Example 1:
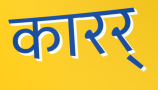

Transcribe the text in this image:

कारर्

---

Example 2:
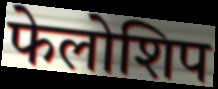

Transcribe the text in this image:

फेलोशिप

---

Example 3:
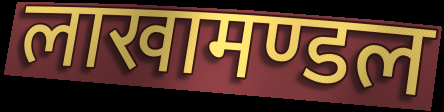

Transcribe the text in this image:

लाखामण्डल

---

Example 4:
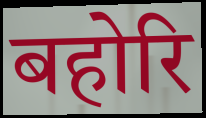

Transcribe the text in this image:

बहोरि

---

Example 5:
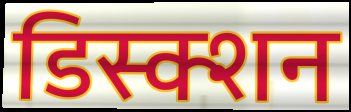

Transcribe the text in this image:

डिस्क्शन